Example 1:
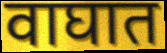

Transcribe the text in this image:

वाघात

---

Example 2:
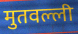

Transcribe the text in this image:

मुतवल्ली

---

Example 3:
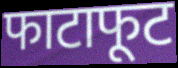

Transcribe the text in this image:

फाटाफूट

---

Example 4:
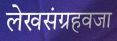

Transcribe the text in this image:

लेखसंग्रहवजा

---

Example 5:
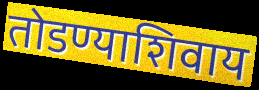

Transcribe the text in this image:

तोडण्याशिवाय